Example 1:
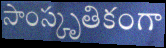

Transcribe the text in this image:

సాంస్కృతికంగా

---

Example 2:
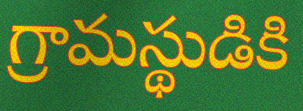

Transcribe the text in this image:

గ్రామస్థుడికి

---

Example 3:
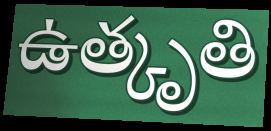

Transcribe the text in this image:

ఉత్కృతి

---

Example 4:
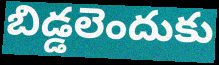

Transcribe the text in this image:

బిడ్డలెందుకు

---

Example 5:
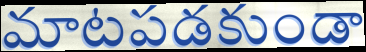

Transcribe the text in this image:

మాటపడకుండా